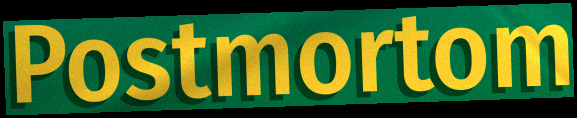
Postmortom